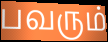
பவரும்